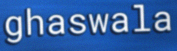
ghaswala